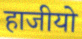
हाजीयो